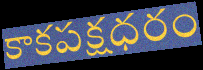
కాకపక్షధరం